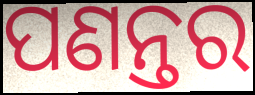
ପଣନ୍ତର